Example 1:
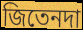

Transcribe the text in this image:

জিতেনদা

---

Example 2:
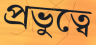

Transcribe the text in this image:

প্রভুত্বে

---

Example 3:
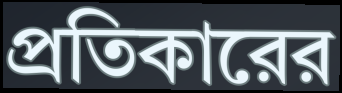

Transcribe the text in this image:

প্রতিকারের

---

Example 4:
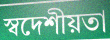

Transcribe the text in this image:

স্বদেশীয়তা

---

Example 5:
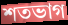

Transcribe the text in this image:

শতভাগ